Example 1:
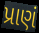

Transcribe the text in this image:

પ્રાણં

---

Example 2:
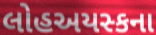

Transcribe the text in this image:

લોહઅયસ્કના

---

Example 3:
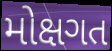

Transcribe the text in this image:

મોક્ષગત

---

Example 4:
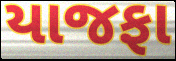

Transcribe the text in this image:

યાજફા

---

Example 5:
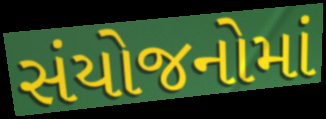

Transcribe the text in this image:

સંયોજનોમાં